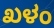
ಖಳಂ